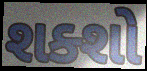
શક્શો